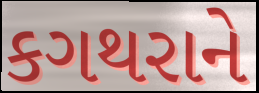
કગથરાને